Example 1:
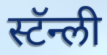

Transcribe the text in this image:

स्टॅन्ली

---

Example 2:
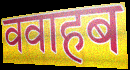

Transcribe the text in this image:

ववाहब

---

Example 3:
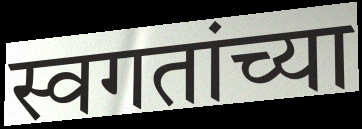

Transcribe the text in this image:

स्वगतांच्या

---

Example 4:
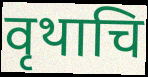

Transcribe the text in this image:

वृथाचि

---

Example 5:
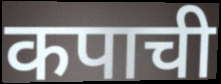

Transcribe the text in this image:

कपाची